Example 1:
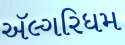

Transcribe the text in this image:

ઍલ્ગરિધમ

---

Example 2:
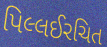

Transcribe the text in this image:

પિલ્લઈરચિત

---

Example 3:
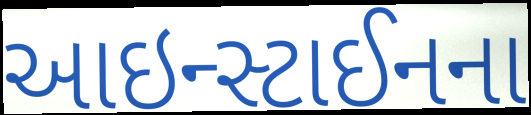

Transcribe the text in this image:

આઇન્સ્ટાઈનના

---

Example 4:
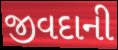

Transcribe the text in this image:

જીવદાની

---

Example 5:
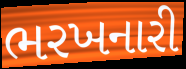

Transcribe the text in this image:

ભરખનારી